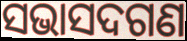
ସଭାସଦଗଣ